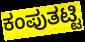
ಕಂಪುತಟ್ಟಿ